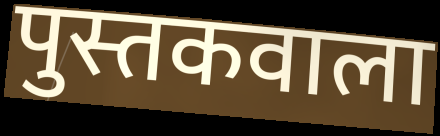
पुस्तकवाला